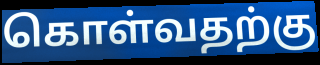
கொள்வதற்கு